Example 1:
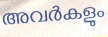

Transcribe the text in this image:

അവർകളും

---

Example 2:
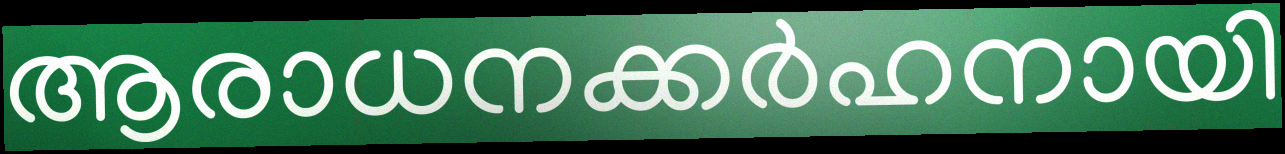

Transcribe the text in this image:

ആരാധനക്കർഹനായി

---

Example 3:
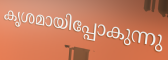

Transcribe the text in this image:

കൃശമായിപ്പോകുന്നു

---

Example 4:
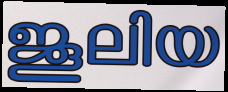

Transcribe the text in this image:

ജൂലിയ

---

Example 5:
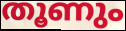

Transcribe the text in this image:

തൂണും